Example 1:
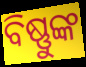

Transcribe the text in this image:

ବିଷ୍ଣୁଙ୍କ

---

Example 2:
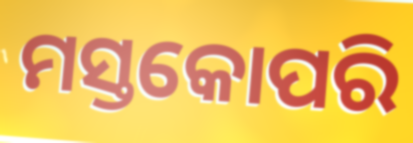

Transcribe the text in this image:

ମସ୍ତକୋପରି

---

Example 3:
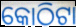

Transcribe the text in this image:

କୋଠିଟା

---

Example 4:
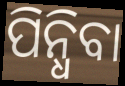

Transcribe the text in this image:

ପିନ୍ଧିବା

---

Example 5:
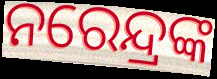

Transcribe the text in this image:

ନରେନ୍ଦ୍ରଙ୍କ